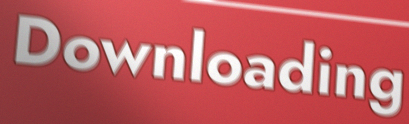
Downloading